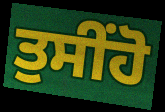
ਤੁਸੀਂਹੋ